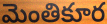
మెంతికూర